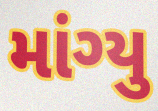
માંગ્યુ